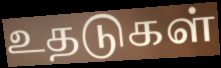
உதடுகள்